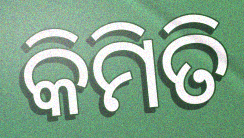
କିମିତି